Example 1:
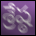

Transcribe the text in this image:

శ్రేష్ఠ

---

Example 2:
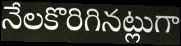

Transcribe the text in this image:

నేలకొరిగినట్లుగా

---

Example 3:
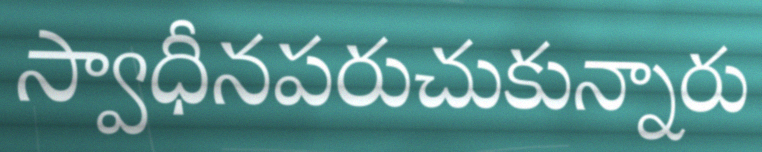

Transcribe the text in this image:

స్వాధీనపరుచుకున్నారు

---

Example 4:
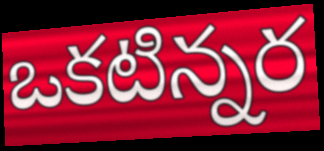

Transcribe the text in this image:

ఒకటిన్నర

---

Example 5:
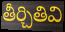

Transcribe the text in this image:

తీర్చితివి